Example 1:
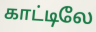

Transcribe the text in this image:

காட்டிலே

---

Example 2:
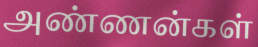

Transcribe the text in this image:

அண்ணன்கள்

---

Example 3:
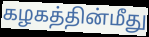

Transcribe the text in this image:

கழகத்தின்மீது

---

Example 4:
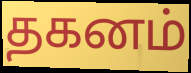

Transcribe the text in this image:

தகனம்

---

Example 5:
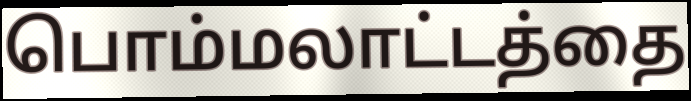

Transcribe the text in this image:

பொம்மலாட்டத்தை